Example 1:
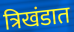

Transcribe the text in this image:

त्रिखंडात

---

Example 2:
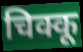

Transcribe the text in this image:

चिक्कू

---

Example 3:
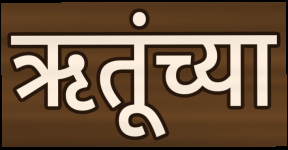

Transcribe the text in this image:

ऋतूंच्या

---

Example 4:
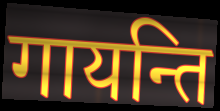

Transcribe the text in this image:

गायन्ति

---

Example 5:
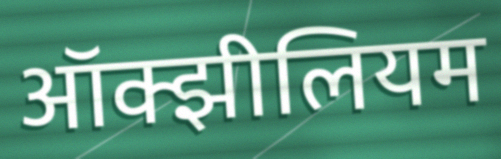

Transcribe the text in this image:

ऑक्झीलियम